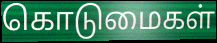
கொடுமைகள்